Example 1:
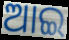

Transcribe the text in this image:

ଆଇ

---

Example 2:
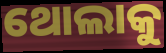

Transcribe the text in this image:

ଥୋଲାକୁ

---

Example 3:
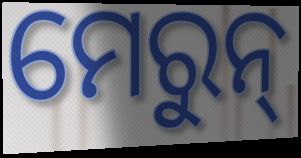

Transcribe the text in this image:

ମେରୁନ୍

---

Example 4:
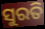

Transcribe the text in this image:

ସୁରତି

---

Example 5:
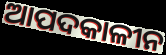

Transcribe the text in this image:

ଆପଦକାଳୀନ